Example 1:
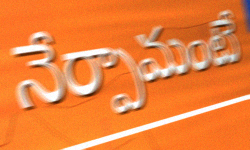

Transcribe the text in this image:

నేర్పామంటే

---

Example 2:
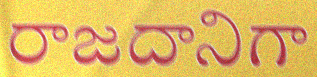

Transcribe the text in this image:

రాజదానిగా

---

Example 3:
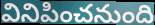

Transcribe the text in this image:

వినిపించనుంది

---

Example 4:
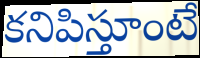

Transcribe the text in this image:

కనిపిస్తూంటే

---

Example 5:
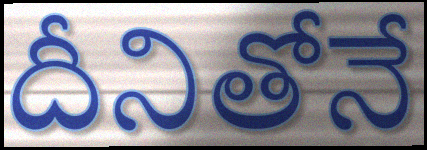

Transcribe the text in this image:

దీనితోనే